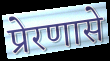
प्रेरणासे